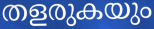
തളരുകയും